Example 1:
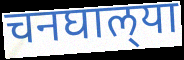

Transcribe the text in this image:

चनघाल्या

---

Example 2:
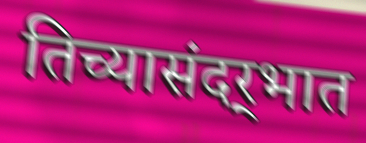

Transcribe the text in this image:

तिच्यासंदर्भात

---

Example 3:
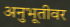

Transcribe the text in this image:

अनुभूतीवर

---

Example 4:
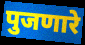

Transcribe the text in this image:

पुजणारे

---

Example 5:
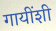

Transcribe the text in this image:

गायींशी